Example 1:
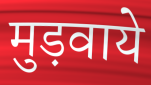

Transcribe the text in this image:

मुड़वाये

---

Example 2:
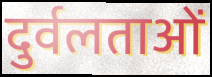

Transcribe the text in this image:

दुर्वलताओं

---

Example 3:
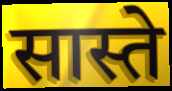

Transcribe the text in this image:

सास्ते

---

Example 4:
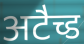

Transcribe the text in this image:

अटैच्ड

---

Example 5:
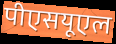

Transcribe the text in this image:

पीएसयूएल